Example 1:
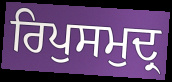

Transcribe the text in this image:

ਰਿਪੁਸਮੁਦ੍ਰ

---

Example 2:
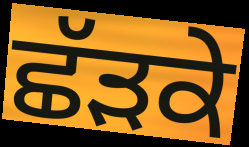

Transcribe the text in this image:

ਛੱੜਕੇ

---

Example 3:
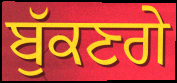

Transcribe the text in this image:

ਬੁੱਕਣਗੇ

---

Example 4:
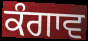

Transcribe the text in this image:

ਕੰਗਾਵ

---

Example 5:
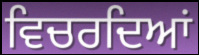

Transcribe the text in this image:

ਵਿਚਰਦਿਆਂ